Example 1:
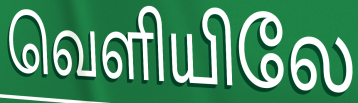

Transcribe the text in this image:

வெளியிலே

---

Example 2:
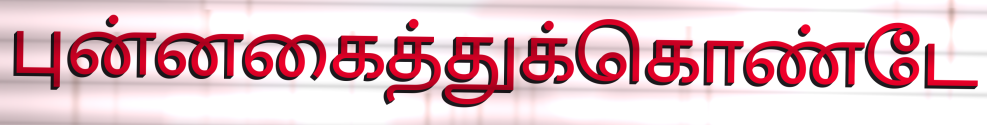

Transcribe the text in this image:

புன்னகைத்துக்கொண்டே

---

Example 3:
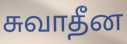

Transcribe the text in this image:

சுவாதீன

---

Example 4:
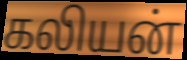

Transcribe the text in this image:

கலியன்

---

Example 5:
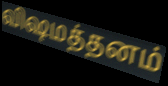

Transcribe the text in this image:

விஷமத்தனம்